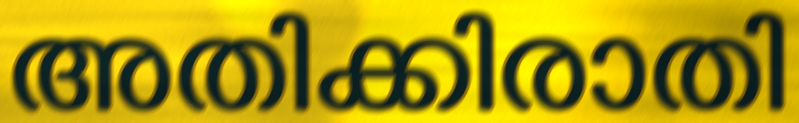
അതിക്കിരാതി